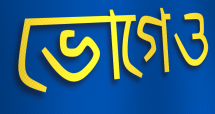
ভোগেও